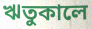
ঋতুকালে